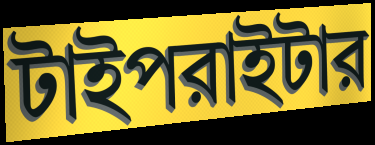
টাইপরাইটার